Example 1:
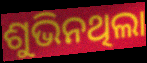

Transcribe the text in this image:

ଶୁଭିନଥିଲା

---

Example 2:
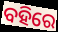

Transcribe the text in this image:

ବହିରେ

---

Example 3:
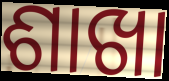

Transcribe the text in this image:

ଶାଖା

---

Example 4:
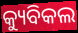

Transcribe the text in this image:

କ୍ୟୁବିକଲ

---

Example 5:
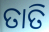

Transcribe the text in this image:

ତାତି